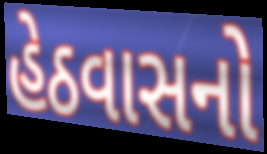
હેઠવાસનો